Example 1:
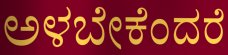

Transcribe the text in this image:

ಅಳಬೇಕೆಂದರೆ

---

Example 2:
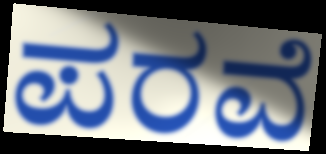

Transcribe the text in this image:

ಪರವೆ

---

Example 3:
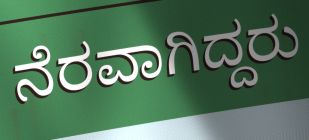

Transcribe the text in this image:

ನೆರವಾಗಿದ್ದರು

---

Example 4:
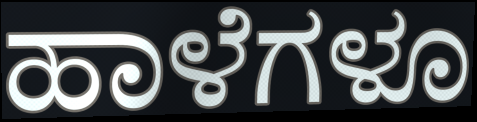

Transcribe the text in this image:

ಹಾಳೆಗಳೂ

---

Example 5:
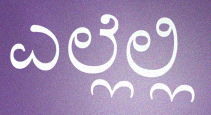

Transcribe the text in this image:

ಎಲ್ಲೆಲ್ಲಿ